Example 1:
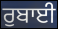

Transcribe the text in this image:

ਰੁਬਾਈ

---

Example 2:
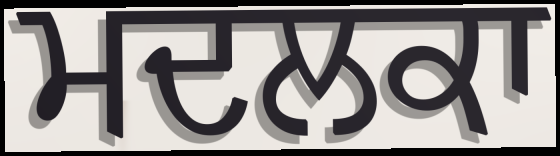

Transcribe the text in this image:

ਮਦਲਕਾ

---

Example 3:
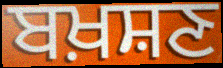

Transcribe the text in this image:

ਬਖ਼ਸ਼ਣ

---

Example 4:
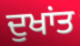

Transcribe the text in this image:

ਦੁਖਾਂਤ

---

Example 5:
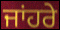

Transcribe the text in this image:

ਜਾਂਹਰੇ